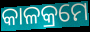
କାଳକ୍ରମେ